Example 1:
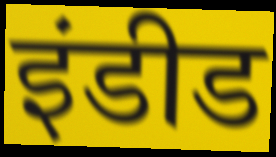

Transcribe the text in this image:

इंडीड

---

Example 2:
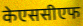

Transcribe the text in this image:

केएससीएफ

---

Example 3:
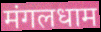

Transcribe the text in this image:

मंगलधाम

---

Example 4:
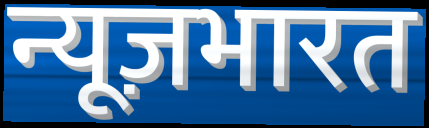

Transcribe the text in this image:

न्यूज़भारत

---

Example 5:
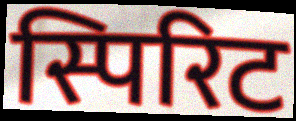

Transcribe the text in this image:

स्पिरिट